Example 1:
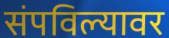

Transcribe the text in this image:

संपविल्यावर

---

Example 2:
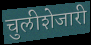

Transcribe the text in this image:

चुलीशेजारी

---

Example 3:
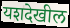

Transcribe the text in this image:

यशदेखील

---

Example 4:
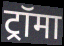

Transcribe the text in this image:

ट्रॉमा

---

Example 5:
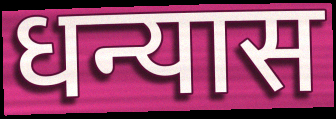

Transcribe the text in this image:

धन्यास